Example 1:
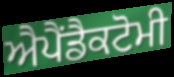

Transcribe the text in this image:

ਐਪੈਂਡੈਕਟੋਮੀ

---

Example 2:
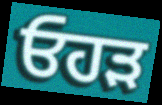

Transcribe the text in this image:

ਓਹੜ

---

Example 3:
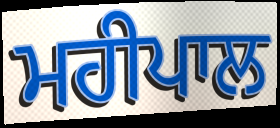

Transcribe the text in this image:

ਮਹੀਪਾਲ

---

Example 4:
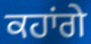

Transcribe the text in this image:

ਕਹਾਂਗੇ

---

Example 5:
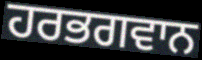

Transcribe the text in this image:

ਹਰਭਗਵਾਨ